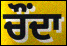
ਚੌਂਦਾ